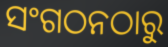
ସଂଗଠନଠାରୁ